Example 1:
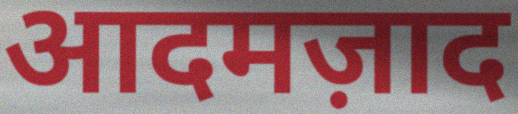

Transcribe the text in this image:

आदमज़ाद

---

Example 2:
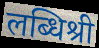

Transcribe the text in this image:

लब्धिश्री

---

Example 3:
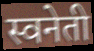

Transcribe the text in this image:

स्वनेती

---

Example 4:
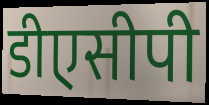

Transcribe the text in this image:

डीएसीपी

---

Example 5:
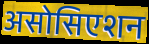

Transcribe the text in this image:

असोसिएशन